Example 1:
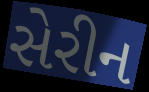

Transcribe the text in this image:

સેરીન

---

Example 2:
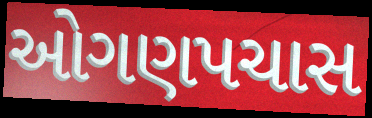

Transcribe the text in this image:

ઓગણપચાસ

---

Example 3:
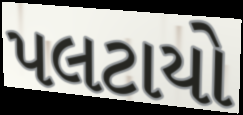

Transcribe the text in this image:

પલટાયો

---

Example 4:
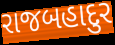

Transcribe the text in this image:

રાજબહાદુર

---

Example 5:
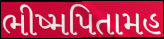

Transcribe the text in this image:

ભીષ્મપિતામહ